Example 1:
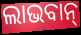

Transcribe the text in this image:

ଲାଭବାନ୍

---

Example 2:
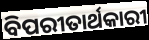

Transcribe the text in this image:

ବିପରୀତାର୍ଥକାରୀ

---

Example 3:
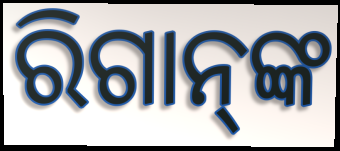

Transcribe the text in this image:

ରିଗାନ୍‌ଙ୍କ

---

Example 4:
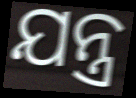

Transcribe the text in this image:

ଯନ୍ତ୍ର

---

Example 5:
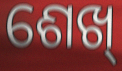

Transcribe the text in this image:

ଶେଖ୍